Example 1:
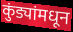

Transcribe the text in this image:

कुंड्यांमधून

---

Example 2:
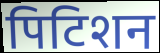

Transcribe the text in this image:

पिटिशन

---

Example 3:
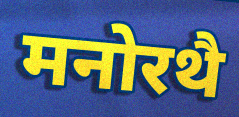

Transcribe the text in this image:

मनोरथै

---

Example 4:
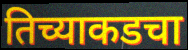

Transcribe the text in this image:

तिच्याकडचा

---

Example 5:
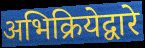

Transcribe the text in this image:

अभिक्रियेद्वारे